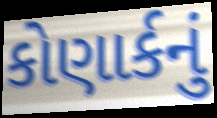
કોણાર્કનું